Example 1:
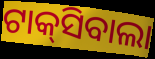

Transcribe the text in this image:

ଟାକ୍‌ସିବାଲା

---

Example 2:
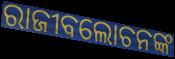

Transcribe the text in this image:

ରାଜୀବଲୋଚନଙ୍କ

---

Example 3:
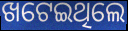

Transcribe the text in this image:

ଖଟେଇଥିଲେ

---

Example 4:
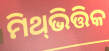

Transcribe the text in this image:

ମିଥ୍‍ଭିତ୍ତିକ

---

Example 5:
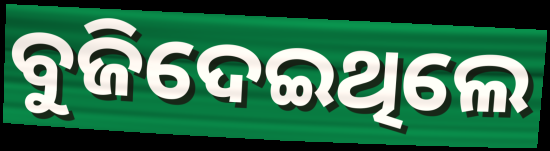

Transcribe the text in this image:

ବୁଜିଦେଇଥିଲେ